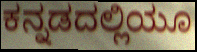
ಕನ್ನಡದಲ್ಲಿಯೂ